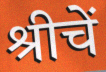
श्रीचें